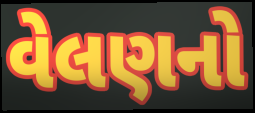
વેલણનો